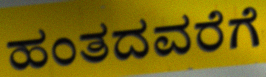
ಹಂತದವರೆಗೆ